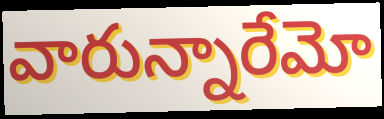
వారున్నారేమో